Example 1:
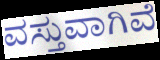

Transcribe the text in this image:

ವಸ್ತುವಾಗಿವೆ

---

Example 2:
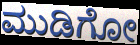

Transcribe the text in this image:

ಮುಡಿಗೋ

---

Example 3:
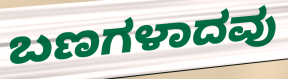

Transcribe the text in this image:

ಬಣಗಳಾದವು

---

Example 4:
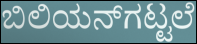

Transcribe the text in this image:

ಬಿಲಿಯನ್‌ಗಟ್ಟಲೆ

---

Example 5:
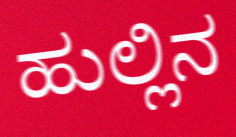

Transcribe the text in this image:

ಹುಲ್ಲಿನ